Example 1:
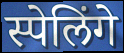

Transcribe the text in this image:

स्पेलिंगे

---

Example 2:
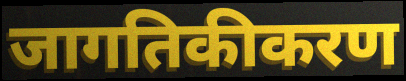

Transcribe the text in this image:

जागतिकीकरण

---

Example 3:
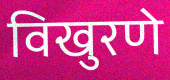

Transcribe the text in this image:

विखुरणे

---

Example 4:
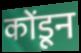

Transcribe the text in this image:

कोंडून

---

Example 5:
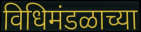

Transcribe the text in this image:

विधिमंडळाच्या